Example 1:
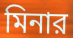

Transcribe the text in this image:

মিনার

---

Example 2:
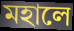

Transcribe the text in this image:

মহালে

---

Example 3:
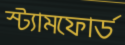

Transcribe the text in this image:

স্ট্যামফোর্ড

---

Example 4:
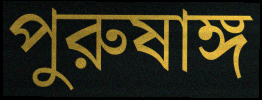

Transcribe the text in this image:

পুরুষাঙ্গ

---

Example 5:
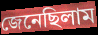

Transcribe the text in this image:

জেনেছিলাম